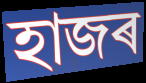
হাজৰ